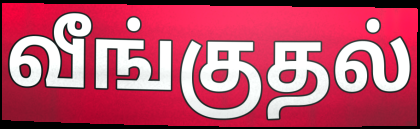
வீங்குதல்